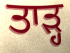
ਤਾੜ੍ਹ